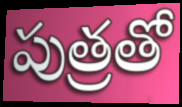
పుత్రతో